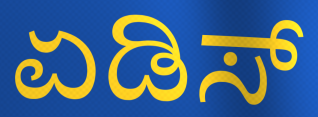
ಏಡಿಸ್